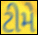
ટીમે